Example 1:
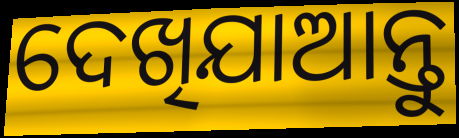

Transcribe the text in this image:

ଦେଖିଯାଆନ୍ତୁ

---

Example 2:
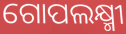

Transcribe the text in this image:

ଗୋପଲକ୍ଷ୍ମୀ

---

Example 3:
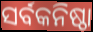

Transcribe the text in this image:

ସର୍ବକନିଷ୍ଠା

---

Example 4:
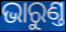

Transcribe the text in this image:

ଭାରୁଣ୍ତ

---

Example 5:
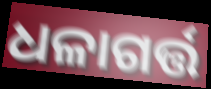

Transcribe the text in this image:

ଧଳାଗର୍ତ୍ତ